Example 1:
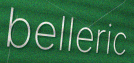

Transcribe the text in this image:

belleric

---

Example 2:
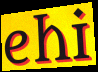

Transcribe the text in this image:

ehi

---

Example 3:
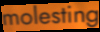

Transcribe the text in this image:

molesting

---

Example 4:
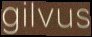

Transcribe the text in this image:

gilvus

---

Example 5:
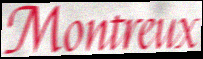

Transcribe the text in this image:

Montreux